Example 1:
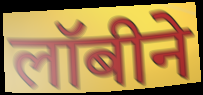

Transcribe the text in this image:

लॉबीने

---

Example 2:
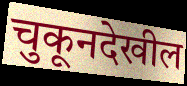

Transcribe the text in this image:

चुकूनदेखील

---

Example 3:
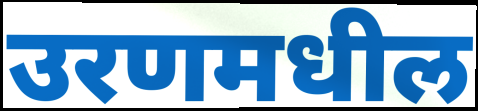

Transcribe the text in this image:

उरणमधील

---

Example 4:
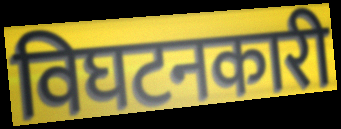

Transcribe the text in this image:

विघटनकारी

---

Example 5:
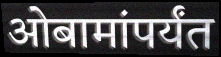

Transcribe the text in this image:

ओबामांपर्यंत